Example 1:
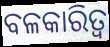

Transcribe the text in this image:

ବଳକାରିତ୍ୱ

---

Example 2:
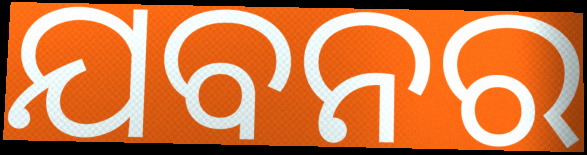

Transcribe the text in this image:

ଯବନର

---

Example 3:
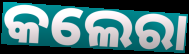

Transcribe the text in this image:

କଲେରା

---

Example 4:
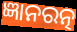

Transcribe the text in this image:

ଜ୍ଞାନରତ୍ନ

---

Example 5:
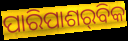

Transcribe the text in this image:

ପାରିପାଶର୍‌ବିକ